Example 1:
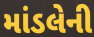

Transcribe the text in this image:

માંડલેની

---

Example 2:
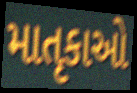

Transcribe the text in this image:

માતૃકાઓ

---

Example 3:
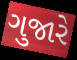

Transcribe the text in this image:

ગુજારે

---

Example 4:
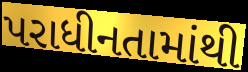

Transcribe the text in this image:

પરાધીનતામાંથી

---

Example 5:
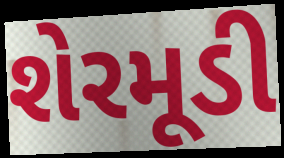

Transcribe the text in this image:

શેરમૂડી